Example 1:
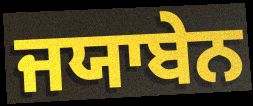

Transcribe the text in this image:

ਜਯਾਬੇਨ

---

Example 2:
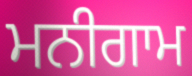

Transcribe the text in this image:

ਮਨੀਗਾਮ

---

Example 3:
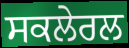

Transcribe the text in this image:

ਸਕਲੇਰਲ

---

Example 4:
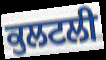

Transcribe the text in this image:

ਕੁਲਟਲੀ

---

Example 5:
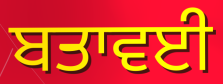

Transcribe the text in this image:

ਬਤਾਵਈ